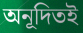
অনূদিতই